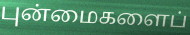
புன்மைகளைப்